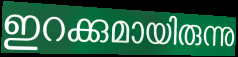
ഇറക്കുമായിരുന്നു